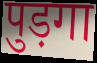
पुड़गा